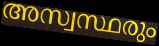
അസ്വസ്ഥരും